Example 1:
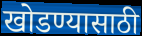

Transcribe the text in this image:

खोडण्यासाठी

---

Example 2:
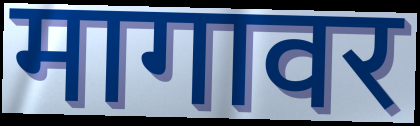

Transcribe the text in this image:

मागावर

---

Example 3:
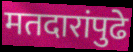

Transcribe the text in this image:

मतदारांपुढे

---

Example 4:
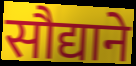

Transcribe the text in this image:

सौद्याने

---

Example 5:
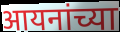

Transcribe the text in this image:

आयनांच्या